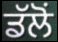
ਡੱਲੋਂ